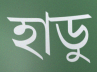
হাডু